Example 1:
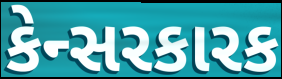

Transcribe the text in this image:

કેન્સરકારક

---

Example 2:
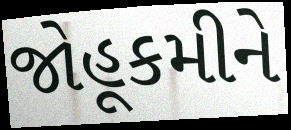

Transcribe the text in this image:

જોહૂકમીને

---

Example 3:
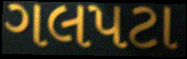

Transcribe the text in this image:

ગલપટા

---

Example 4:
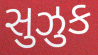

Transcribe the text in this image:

સુઝુક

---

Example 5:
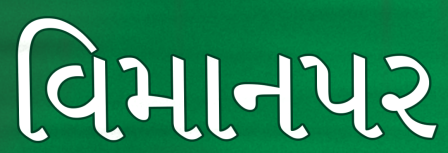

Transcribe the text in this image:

વિમાનપર